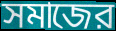
সমাজের